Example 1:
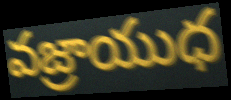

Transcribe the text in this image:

వజ్రాయుధ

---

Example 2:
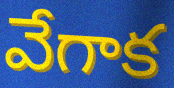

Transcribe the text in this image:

వేగాక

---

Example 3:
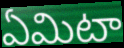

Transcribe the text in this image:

ఏమిటా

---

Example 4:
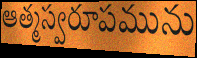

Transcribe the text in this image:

ఆత్మస్వరూపమును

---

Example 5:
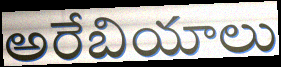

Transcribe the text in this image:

అరేబియాలు